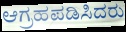
ಆಗ್ರಹಪಡಿಸಿದರು